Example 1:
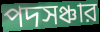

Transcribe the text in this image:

পদসঞ্চার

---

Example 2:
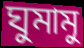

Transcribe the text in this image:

ঘুমামু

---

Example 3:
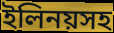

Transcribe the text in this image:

ইলিনয়সহ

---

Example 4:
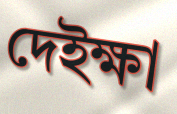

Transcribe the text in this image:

দেইক্ষা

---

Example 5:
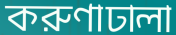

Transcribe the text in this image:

করুণাঢালা